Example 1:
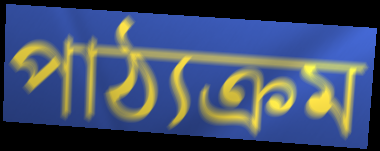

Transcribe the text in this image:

পাঠ্যক্ৰম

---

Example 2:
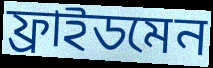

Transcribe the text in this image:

ফ্ৰাইডমেন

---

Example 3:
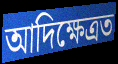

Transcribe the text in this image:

আদিক্ষেত্ৰত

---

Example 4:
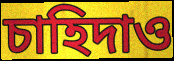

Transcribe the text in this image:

চাহিদাও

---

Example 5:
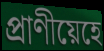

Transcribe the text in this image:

প্ৰাণীয়েহে